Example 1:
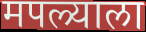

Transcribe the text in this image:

मपल्याला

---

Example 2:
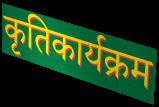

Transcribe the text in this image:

कृतिकार्यक्रम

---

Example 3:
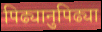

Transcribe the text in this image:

पिढ्यानुपिढ्या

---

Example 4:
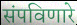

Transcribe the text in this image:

संपविणारे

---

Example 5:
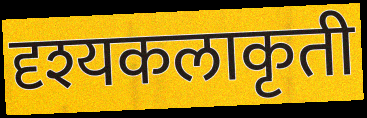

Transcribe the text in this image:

दृश्यकलाकृती